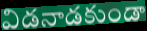
విడనాడకుండా